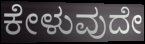
ಕೇಳುವುದೇ